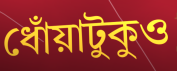
ধোঁয়াটুকুও